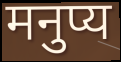
मनुप्य